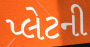
પ્લેટની